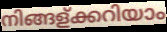
നിങ്ങള്ക്കറിയാം